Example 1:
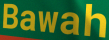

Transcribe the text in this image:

Bawah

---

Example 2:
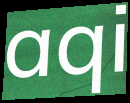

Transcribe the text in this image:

aqi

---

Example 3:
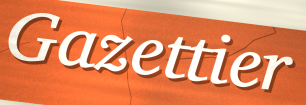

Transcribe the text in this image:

Gazettier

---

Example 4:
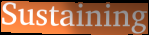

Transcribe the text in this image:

Sustaining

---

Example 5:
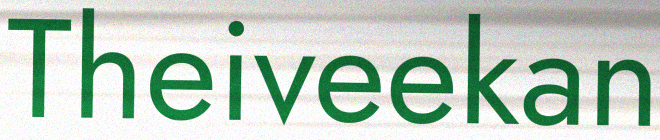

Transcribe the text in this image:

Theiveekan